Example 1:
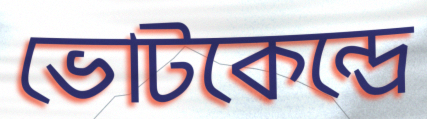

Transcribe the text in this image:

ভোটকেন্দ্রে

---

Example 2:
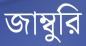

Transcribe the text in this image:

জাম্বুরি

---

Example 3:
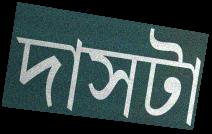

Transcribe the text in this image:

দাসটা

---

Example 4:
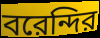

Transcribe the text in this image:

বরেন্দির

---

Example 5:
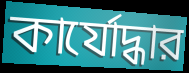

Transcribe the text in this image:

কার্যোদ্ধার